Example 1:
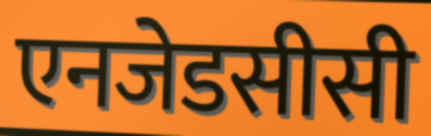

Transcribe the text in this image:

एनजेडसीसी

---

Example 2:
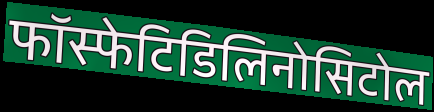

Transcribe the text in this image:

फॉस्फेटिडिलिनोसिटोल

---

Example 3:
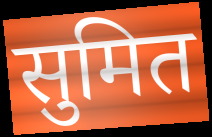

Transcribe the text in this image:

सुमित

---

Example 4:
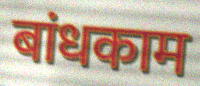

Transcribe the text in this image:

बांधकाम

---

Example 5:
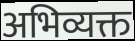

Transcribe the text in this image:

अभिव्यक्त